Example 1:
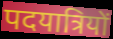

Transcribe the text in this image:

पदयात्रियों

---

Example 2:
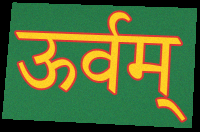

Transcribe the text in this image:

ऊर्वम्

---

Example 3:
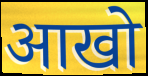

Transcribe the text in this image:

आखो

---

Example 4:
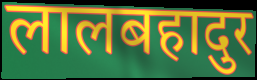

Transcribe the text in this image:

लालबहादुर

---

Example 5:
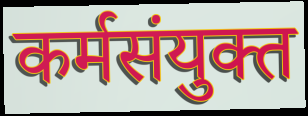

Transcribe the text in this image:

कर्मसंयुक्त